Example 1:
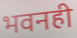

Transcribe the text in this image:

भवनही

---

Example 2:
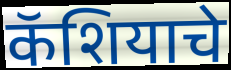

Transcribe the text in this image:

कॅशियाचे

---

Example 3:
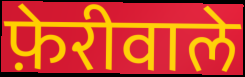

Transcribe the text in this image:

फ़ेरीवाले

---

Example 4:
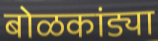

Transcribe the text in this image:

बोळकांड्या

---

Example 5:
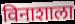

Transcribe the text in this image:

विनाशाला